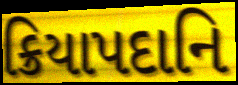
ક્રિયાપદાનિ